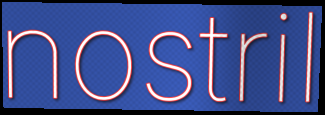
nostril